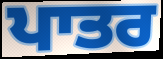
ਪਾਤਰ